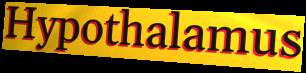
Hypothalamus